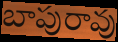
బాపురావు